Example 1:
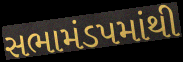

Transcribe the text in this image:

સભામંડપમાંથી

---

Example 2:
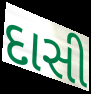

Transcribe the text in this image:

દાસી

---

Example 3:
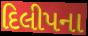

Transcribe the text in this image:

દિલીપના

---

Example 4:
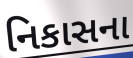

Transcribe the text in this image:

નિકાસના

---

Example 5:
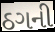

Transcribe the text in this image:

ઠગની